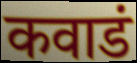
कवाडं